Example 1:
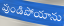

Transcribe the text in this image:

వుండిపోయాను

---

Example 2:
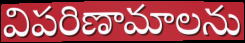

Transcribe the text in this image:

విపరిణామాలను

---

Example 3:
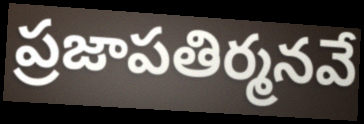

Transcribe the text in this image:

ప్రజాపతిర్మనవే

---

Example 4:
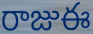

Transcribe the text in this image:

రాజుఈ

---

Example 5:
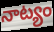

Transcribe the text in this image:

నాట్యం